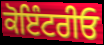
ਕੋਇੰਟਰੀਓ